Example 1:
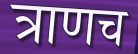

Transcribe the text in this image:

त्राणच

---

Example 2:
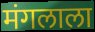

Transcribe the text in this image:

मंगलाला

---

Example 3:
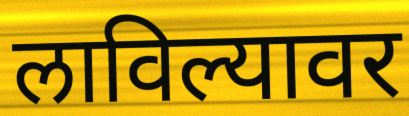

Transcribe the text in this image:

लाविल्यावर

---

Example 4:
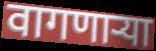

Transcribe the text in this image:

वागणाऱ्या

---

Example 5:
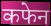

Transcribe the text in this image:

कफेन